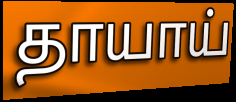
தாயாய்